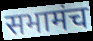
सभामंच